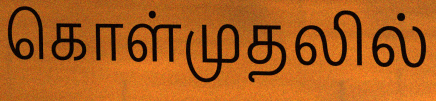
கொள்முதலில்